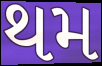
થમ